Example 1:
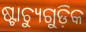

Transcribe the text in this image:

ଷ୍ଟାଚ୍ୟୁଗୁଡ଼ିକ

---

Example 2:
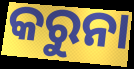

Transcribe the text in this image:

କରୁନା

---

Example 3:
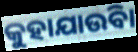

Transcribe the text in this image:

କୁହାଯାଉିବା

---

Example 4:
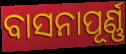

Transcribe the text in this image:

ବାସନାପୂର୍ଣ୍ଣ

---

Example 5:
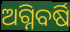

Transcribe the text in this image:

ଅଗ୍ନିବର୍ଷି